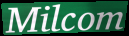
Milcom